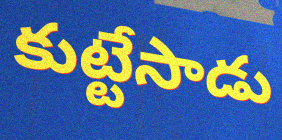
కుట్టేసాడు